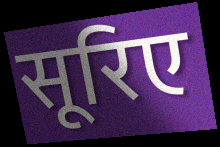
सूरिए